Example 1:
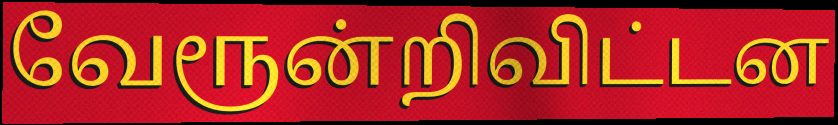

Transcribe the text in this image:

வேரூன்றிவிட்டன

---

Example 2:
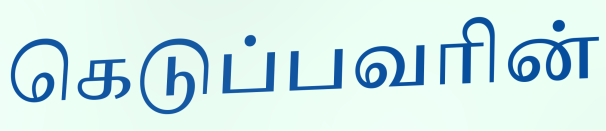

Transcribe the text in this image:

கெடுப்பவரின்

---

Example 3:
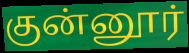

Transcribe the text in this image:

குன்னூர்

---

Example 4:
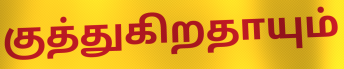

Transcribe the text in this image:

குத்துகிறதாயும்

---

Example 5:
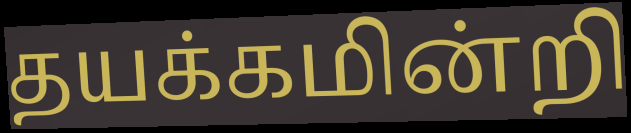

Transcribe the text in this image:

தயக்கமின்றி